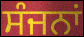
ਸੰਜਨਾਂ